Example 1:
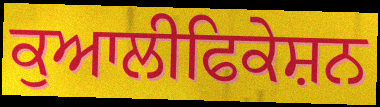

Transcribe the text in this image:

ਕੁਆਲੀਫਿਕੇਸ਼ਨ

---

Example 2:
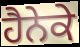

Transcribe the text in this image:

ਹੈਨੇਕੇ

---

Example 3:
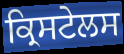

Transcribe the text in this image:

ਕ੍ਰਿਸਟੇਲਸ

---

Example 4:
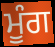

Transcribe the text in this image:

ਮੂੰਗ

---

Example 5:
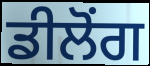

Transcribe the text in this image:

ਡੀਲੋਂਗ